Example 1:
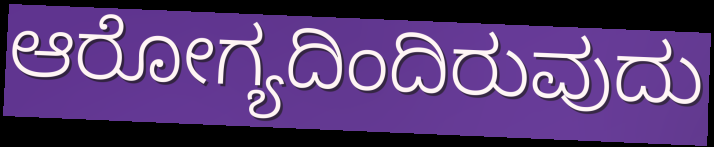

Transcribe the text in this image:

ಆರೋಗ್ಯದಿಂದಿರುವುದು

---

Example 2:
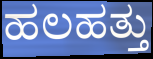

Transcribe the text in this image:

ಹಲಹತ್ತು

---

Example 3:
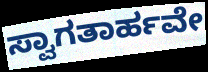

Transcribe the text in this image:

ಸ್ವಾಗತಾರ್ಹವೇ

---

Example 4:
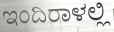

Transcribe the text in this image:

ಇಂದಿರಾಳಲ್ಲಿ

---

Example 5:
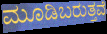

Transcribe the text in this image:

ಮೂಡಿಬರುತ್ತವೆ